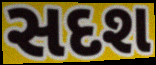
સદશ